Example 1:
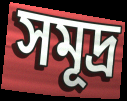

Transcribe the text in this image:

সমূদ্র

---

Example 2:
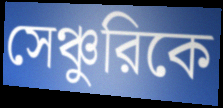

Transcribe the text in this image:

সেঞ্চুরিকে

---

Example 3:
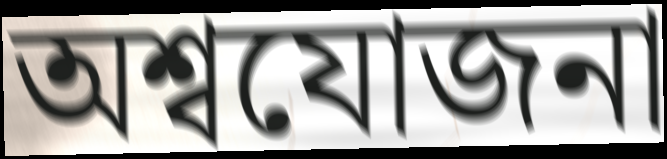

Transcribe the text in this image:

অশ্বযোজনা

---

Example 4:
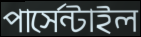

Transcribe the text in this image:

পার্সেন্টাইল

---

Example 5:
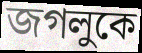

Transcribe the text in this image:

জগলুকে